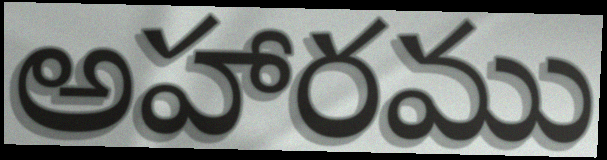
అహారము